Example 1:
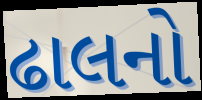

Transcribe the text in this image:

ઢાલનો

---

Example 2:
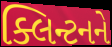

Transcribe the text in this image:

ક્લિન્ટનને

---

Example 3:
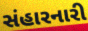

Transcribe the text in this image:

સંહારનારી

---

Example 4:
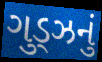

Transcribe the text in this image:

ગુડ્ઝનું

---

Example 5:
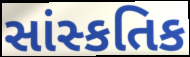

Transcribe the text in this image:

સાંસ્કતિક